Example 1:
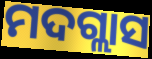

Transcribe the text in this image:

ମଦଗ୍ଲାସ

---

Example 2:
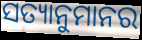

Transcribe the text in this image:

ସତ୍ୟାନୁମାନର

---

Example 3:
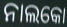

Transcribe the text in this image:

ନାଲକୋ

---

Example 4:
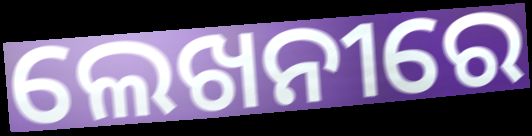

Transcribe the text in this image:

ଲେଖନୀରେ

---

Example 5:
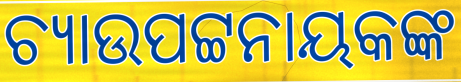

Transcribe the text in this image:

ଚ୍ୟାଉପଟ୍ଟନାୟକଙ୍କ